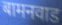
बामनवाड